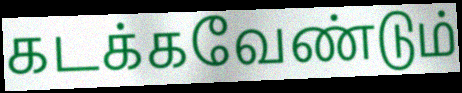
கடக்கவேண்டும்